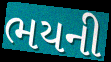
ભયની